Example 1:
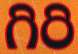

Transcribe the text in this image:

గిరి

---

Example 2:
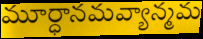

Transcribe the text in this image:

మూర్ధానమవ్యాన్మమ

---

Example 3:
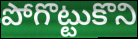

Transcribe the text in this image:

పోగొట్టుకొని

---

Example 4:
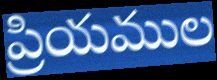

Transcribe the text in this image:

ప్రియముల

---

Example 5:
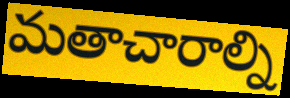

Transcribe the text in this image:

మతాచారాల్ని